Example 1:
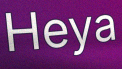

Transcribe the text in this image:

Heya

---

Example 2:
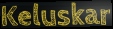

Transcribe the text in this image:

Keluskar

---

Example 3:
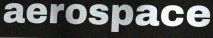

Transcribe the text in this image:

aerospace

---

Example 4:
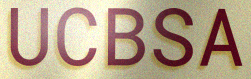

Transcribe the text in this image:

UCBSA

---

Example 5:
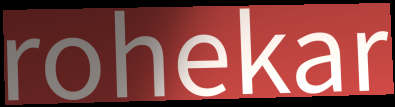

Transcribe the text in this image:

rohekar